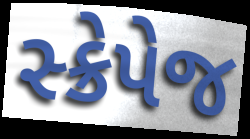
સ્ક્રેપેજ